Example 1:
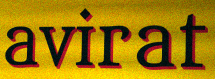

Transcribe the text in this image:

avirat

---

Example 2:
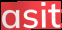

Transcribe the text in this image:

asit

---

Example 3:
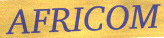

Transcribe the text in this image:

AFRICOM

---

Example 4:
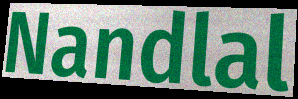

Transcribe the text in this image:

Nandlal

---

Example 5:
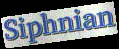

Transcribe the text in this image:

Siphnian